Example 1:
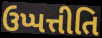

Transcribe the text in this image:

ઉપ્પત્તીતિ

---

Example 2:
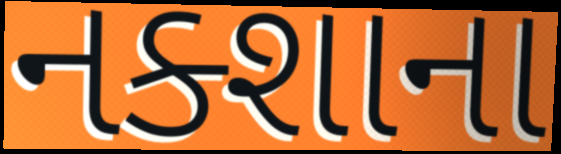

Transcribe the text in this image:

નક્શાના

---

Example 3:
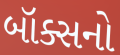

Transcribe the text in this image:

બૉક્સનો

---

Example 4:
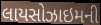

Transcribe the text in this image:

લાયસોઝાઇમની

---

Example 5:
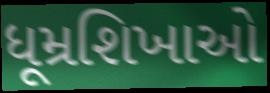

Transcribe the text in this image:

ધૂમ્રશિખાઓ